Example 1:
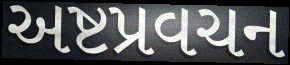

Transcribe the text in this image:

અષ્ટપ્રવચન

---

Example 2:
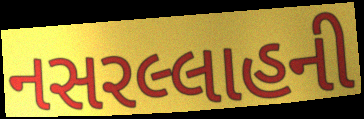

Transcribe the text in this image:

નસરલ્લાહની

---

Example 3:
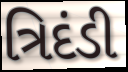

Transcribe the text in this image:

ત્રિદંડી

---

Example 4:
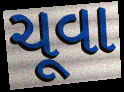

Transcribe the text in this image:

ચૂવા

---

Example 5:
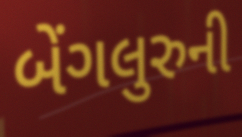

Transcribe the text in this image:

બેંગલુરુની